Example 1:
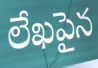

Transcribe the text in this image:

లేఖపైన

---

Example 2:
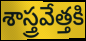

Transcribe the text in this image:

శాస్త్రవేత్తకి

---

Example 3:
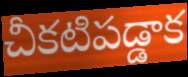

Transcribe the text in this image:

చీకటిపడ్డాక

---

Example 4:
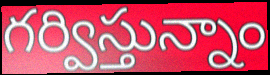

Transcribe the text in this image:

గర్విస్తున్నాం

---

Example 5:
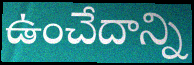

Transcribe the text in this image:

ఉంచేదాన్ని